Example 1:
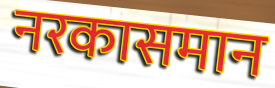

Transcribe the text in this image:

नरकासमान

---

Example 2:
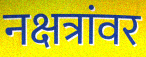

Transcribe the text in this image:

नक्षत्रांवर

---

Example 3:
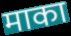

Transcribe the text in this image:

माका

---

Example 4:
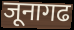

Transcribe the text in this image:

जूनागढ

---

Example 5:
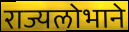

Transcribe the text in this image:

राज्यलोभाने